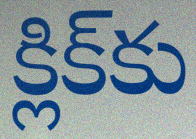
క్లిక్‌కు